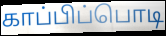
காப்பிப்பொடி